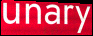
unary